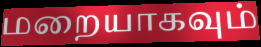
மறையாகவும்